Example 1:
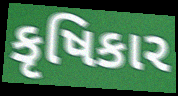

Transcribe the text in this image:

કૃષિકાર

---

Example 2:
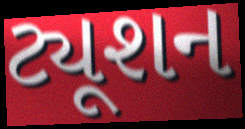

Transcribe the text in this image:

ટ્યૂશન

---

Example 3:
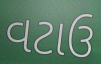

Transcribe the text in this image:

વટાઉ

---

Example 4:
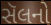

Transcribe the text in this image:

સૅલનો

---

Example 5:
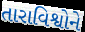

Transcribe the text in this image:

તારાવિશ્વોને